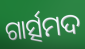
ଗାର୍ତ୍ସମଦ